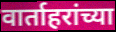
वार्ताहरांच्या